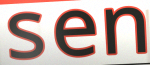
sen